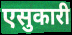
एसुकारी